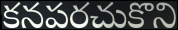
కనపరచుకొని